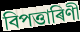
বিপত্তাৰিণী